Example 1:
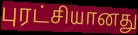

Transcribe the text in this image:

புரட்சியானது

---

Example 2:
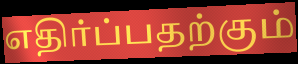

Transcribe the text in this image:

எதிர்ப்பதற்கும்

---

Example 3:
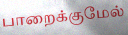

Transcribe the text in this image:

பாறைக்குமேல்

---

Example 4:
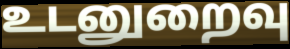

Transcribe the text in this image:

உடனுறைவு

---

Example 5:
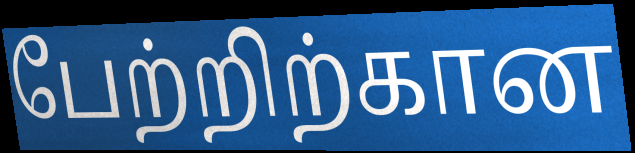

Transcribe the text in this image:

பேற்றிற்கான